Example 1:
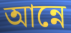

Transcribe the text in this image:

আন্নে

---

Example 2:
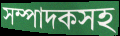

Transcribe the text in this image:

সম্পাদকসহ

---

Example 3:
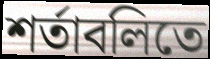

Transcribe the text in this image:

শর্তাবলিতে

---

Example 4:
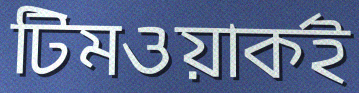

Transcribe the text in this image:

টিমওয়ার্কই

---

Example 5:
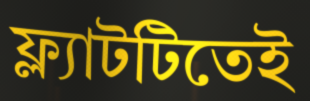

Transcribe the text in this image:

ফ্ল্যাটটিতেই